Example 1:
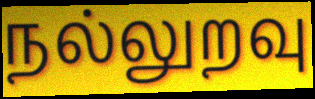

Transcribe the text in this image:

நல்லுறவு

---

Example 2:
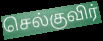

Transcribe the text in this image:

செல்குவிர்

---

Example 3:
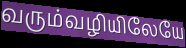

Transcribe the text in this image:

வரும்வழியிலேயே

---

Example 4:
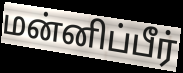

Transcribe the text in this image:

மன்னிப்பீர்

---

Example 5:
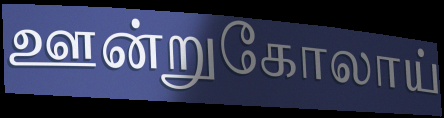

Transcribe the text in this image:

ஊன்றுகோலாய்